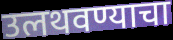
उलथवण्याचा